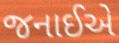
જનાઈએ